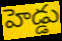
హెడ్డు